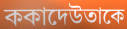
ককাদেউতাকে